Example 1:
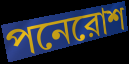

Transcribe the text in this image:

পনেরোশ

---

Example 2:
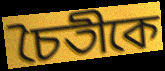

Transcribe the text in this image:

চৈতীকে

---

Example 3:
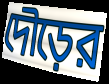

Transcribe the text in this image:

দৌড়ের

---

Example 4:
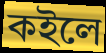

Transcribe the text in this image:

কইলে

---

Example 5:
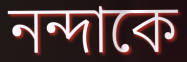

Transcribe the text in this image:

নন্দাকে